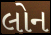
લોન